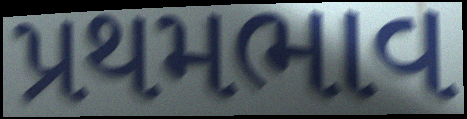
પ્રથમભાવ